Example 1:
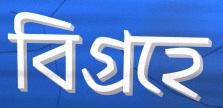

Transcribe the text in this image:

বিগ্রহে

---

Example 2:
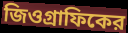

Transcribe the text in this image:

জিওগ্রাফিকের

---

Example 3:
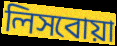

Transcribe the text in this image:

লিসবোয়া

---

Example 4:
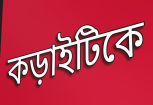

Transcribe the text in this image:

কড়াইটিকে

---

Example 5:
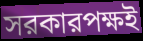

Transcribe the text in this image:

সরকারপক্ষই